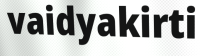
vaidyakirti